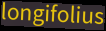
longifolius